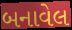
બનાવેલ